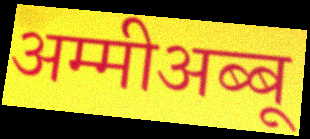
अम्मीअब्बू